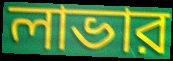
লাভার